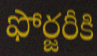
ఫోర్జరీకి